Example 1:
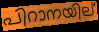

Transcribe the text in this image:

പിറാനയില്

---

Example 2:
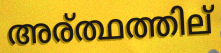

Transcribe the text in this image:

അര്ത്ഥത്തില്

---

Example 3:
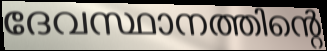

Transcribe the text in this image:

ദേവസ്ഥാനത്തിന്റെ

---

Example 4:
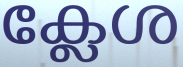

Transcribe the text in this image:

ക്ലേശ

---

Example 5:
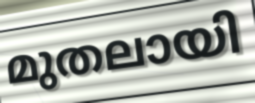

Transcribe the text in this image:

മുതലായി